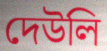
দেউলি